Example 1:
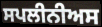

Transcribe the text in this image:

ਸਪਲੀਨੀਅਸ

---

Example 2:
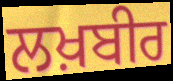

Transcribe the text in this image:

ਲਖ਼ਬੀਰ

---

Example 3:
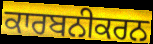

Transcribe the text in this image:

ਕਾਰਬਨੀਕਰਨ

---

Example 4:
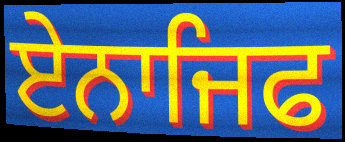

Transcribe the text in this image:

ਏਨਾਜਿਫ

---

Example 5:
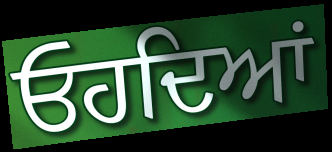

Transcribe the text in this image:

ਓਹਦਿਆਂ